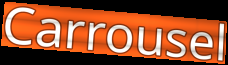
Carrousel